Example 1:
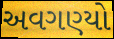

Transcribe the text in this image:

અવગણ્યો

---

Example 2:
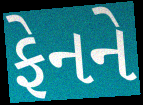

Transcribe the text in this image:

ફેનને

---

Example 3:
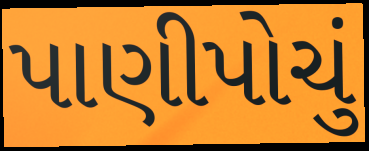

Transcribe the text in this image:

પાણીપોચું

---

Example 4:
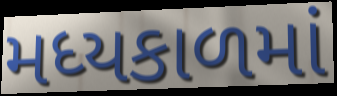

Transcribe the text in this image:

મધ્યકાળમાં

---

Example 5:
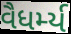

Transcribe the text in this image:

વૈધર્મ્ય